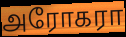
அரோகரா